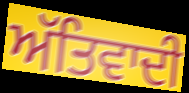
ਅੱਤਿਵਾਦੀ